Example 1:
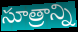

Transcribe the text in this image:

సూత్రాన్ని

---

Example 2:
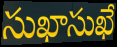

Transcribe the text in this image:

సుఖాసుఖే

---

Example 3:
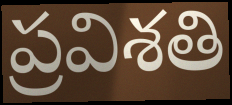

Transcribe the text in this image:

ప్రవిశతి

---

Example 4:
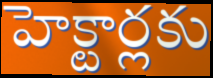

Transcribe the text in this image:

హెక్టార్లకు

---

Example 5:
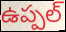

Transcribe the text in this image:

ఉప్పల్